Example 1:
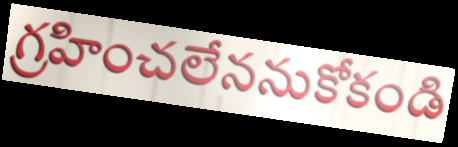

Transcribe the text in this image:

గ్రహించలేననుకోకండి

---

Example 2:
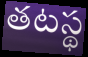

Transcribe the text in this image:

తటస్థ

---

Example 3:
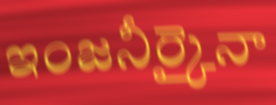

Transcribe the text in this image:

ఇంజనీర్కైనా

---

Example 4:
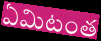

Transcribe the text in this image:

ఏమిటంత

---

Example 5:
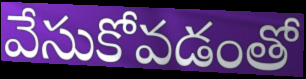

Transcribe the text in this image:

వేసుకోవడంతో